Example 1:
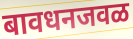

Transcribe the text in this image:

बावधनजवळ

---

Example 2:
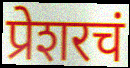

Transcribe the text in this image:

प्रेशरचं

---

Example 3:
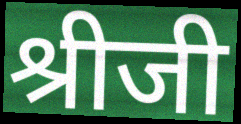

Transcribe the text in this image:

श्रीजी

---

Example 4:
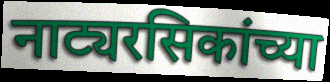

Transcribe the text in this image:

नाट्यरसिकांच्या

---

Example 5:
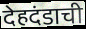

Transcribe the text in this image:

देहदंडाची